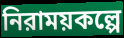
নিরাময়কল্পে